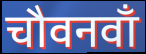
चौवनवाँ